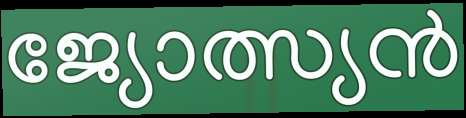
ജ്യോത്സ്യൻ